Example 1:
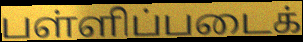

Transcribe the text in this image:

பள்ளிப்படைக்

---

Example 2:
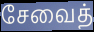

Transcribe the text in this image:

சேவைத்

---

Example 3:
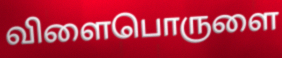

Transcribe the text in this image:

விளைபொருளை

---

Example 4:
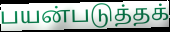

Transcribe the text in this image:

பயன்படுத்தக்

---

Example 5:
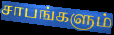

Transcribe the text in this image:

சாபங்களும்